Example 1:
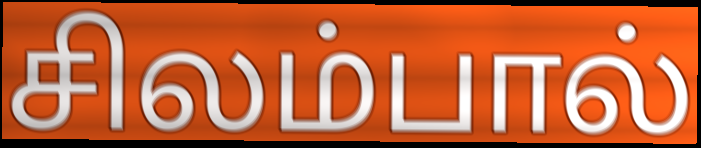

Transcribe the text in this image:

சிலம்பால்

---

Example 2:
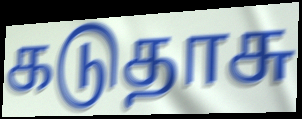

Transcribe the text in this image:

கடுதாசு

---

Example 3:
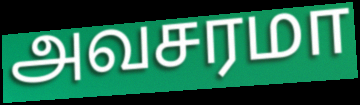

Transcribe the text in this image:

அவசரமா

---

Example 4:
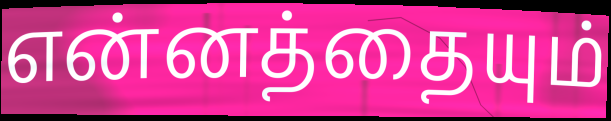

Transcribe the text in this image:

என்னத்தையும்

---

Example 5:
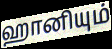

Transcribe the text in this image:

ஹானியும்